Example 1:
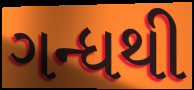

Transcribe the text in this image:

ગન્ધથી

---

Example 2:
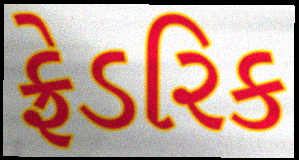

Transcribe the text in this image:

ફ્રેડરિક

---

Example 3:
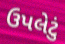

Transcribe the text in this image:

ઉપલેટું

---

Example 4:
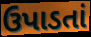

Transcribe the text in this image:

ઉપાડતાં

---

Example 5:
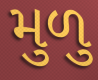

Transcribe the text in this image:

મુળુ